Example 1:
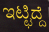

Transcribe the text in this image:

ಇಟ್ಟಿದ್ದೆ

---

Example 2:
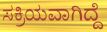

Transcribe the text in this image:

ಸಕ್ರಿಯವಾಗಿದ್ದೆ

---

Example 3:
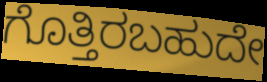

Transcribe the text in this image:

ಗೊತ್ತಿರಬಹುದೇ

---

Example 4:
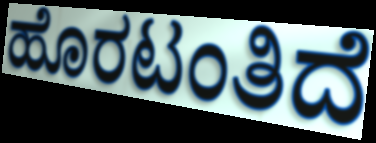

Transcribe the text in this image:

ಹೊರಟಂತಿದೆ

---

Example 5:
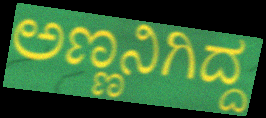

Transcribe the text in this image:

ಅಣ್ಣನಿಗಿದ್ದ